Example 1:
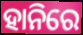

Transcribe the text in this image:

ହାନିରେ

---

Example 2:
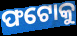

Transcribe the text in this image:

ଫଟୋକୁ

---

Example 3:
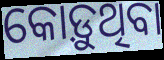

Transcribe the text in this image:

କୋଡ଼ୁଥିବା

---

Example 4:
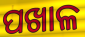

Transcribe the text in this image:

ପଖାଳ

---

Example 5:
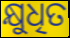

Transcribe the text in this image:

କ୍ଷୁଧିତ